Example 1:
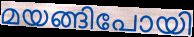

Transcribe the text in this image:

മയങ്ങിപോയി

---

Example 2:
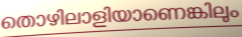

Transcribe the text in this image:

തൊഴിലാളിയാണെങ്കിലും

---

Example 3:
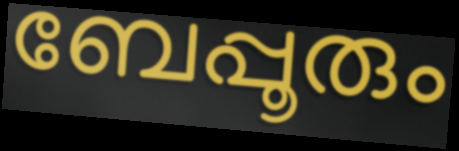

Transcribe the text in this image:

ബേപ്പൂരും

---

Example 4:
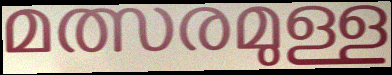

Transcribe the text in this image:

മത്സരമുള്ള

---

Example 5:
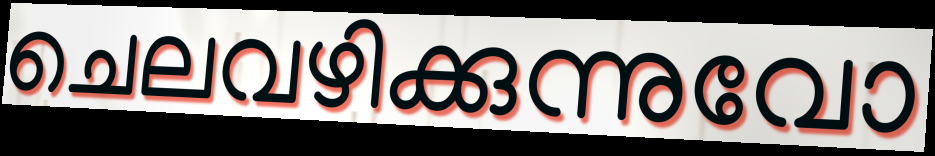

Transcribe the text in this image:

ചെലവഴിക്കുന്നുവോ